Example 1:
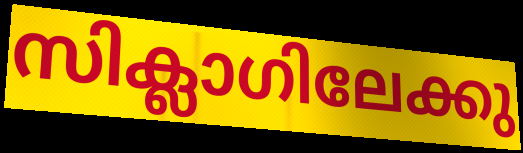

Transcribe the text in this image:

സിക്ലാഗിലേക്കു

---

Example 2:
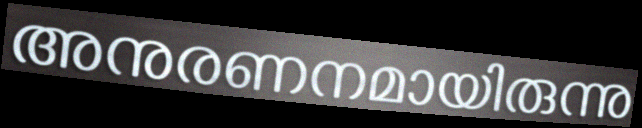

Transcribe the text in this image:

അനുരണനമായിരുന്നു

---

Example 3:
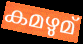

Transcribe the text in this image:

കമഴുമ്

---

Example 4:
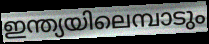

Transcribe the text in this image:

ഇന്ത്യയിലെമ്പാടും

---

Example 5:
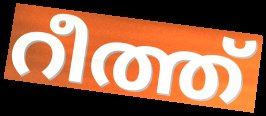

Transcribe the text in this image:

റീത്ത്